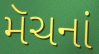
મૅચનાં